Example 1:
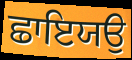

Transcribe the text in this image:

ਛਾਇਯਉ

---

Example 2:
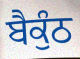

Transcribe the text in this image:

ਬੈਕੁੰਠ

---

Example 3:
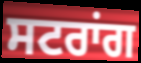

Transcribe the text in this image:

ਸਟਰਾਂਗ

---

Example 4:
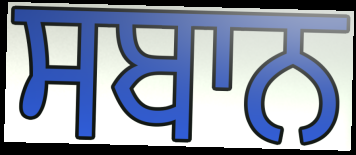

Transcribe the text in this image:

ਸਬਾਨ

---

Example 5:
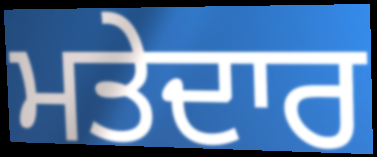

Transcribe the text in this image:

ਮਤੇਦਾਰ